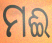
ମଈ